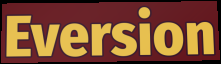
Eversion